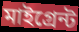
মাইগ্রেন্ট